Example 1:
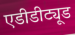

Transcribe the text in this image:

एडीडीट्यूड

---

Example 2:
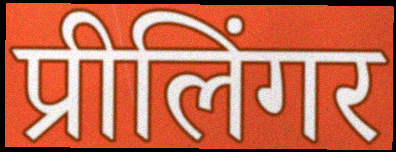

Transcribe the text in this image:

प्रीलिंगर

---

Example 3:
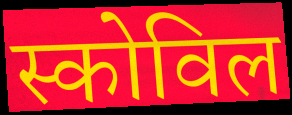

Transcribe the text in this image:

स्कोविल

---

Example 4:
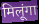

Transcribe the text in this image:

मिलूंगा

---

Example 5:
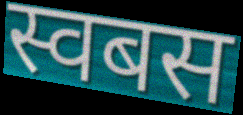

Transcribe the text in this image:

स्वबस